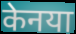
केनया